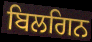
ਬਿਲਗਿਨ